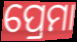
ପ୍ରେମା